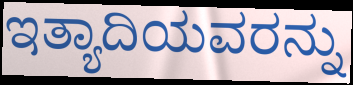
ಇತ್ಯಾದಿಯವರನ್ನು